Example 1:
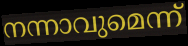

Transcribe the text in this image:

നന്നാവുമെന്ന്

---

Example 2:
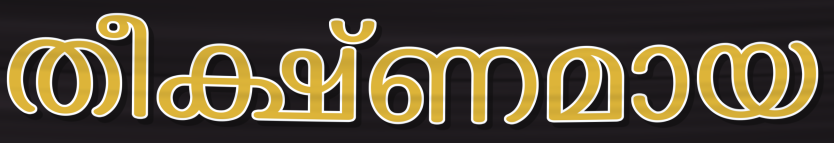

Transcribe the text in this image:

തീക്ഷ്‌ണമായ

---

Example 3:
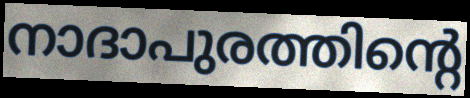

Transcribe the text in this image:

നാദാപുരത്തിന്റെ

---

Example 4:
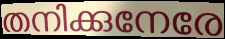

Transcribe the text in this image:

തനിക്കുനേരേ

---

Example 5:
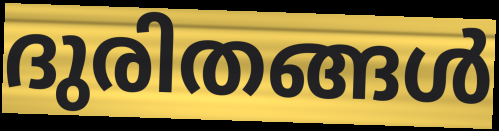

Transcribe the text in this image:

ദുരിതങ്ങൾ